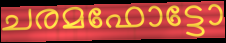
ചരമഫോട്ടോ